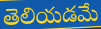
తెలియడమే